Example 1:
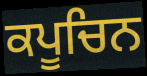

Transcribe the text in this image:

ਕਪੂਚਿਨ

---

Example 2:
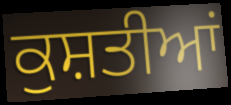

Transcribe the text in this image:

ਕੁਸ਼ਤੀਆਂ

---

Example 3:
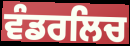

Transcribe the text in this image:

ਵੰਡਰਲਿਚ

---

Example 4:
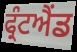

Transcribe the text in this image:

ਫ੍ਰੰਟਐਂਡ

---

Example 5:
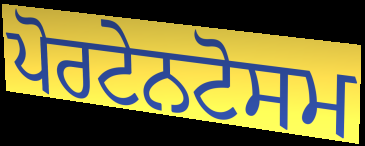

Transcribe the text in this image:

ਪੋਰਟੇਨਟੋਸਮ